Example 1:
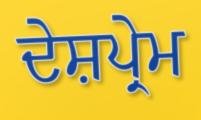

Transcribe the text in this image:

ਦੇਸ਼ਪ੍ਰੇਮ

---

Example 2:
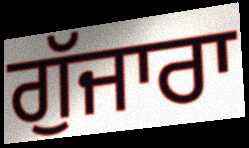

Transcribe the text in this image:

ਗੁੱਜਾਰਾ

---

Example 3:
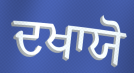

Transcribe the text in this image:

ਦਖਾਯੋ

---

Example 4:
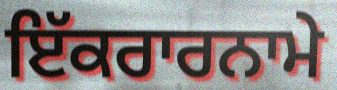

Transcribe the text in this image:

ਇੱਕਰਾਰਨਾਮੇ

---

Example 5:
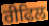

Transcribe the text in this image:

ਰੀਫਿਲ